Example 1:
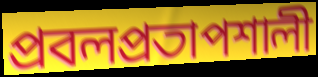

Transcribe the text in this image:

প্রবলপ্রতাপশালী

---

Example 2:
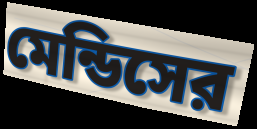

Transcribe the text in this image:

মেন্ডিসের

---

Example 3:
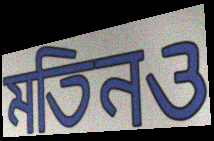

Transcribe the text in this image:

মতিনও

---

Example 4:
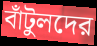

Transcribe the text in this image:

বাঁটুলদের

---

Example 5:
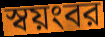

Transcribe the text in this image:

স্বয়ংবর